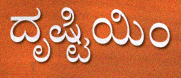
ದೃಷ್ಟಿಯಿಂ